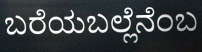
ಬರೆಯಬಲ್ಲೆನೆಂಬ